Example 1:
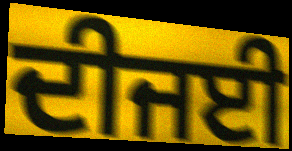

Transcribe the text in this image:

ਦੀਜਈ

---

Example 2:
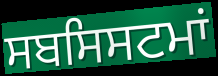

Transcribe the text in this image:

ਸਬਸਿਸਟਮਾਂ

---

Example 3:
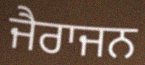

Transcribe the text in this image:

ਜੈਰਾਜਨ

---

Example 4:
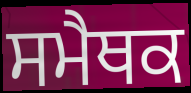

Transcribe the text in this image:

ਸਮੈਥਕ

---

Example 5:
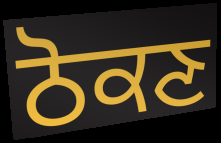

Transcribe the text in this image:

ਠੋਕਣ